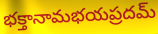
భక్తానామభయప్రదమ్